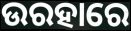
ଉରହାରେ